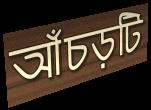
আঁচড়টি